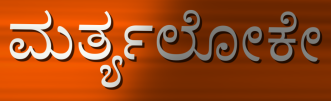
ಮರ್ತ್ಯಲೋಕೇ